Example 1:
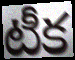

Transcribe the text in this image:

టీక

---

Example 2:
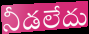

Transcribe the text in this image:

నీడలేదు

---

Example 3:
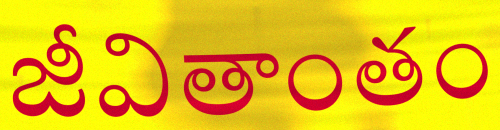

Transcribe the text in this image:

జీవితాంతం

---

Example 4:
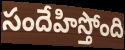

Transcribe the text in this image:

సందేహిస్తోంది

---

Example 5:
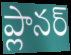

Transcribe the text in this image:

ప్లానర్